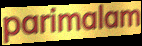
parimalam